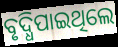
ବୃଦ୍ଧିପାଇଥିଲେ